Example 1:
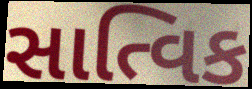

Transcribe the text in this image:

સાત્વિક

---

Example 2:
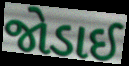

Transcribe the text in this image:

જોડાઈ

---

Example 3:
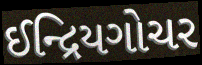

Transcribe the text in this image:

ઈન્દ્રિયગોચર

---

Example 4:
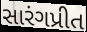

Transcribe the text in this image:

સારંગપ્રીત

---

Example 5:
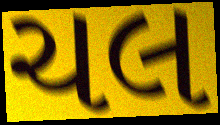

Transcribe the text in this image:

ચલ